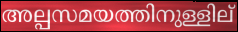
അല്പസമയത്തിനുള്ളില്